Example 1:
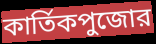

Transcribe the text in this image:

কার্তিকপুজোর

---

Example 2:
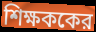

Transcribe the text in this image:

শিক্ষককের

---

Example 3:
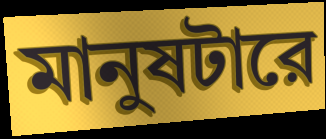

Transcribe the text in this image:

মানুষটারে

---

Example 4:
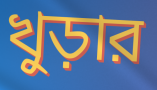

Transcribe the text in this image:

খুড়ার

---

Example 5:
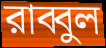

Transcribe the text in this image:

রাব্বুল